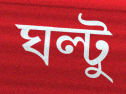
ঘল্টু